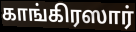
காங்கிரஸார்